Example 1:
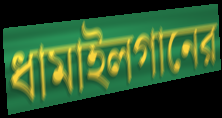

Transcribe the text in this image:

ধামাইলগানের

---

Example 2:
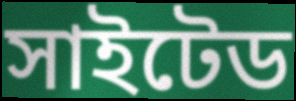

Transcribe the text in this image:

সাইটেড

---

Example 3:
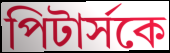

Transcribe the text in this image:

পিটার্সকে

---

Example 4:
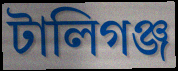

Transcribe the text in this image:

টালিগঞ্জ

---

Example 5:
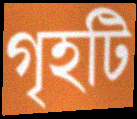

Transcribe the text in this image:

গৃহটি